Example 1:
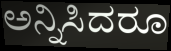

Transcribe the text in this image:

ಅನ್ನಿಸಿದರೂ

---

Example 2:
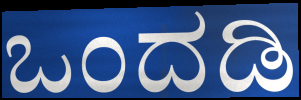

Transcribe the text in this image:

ಒಂದಡಿ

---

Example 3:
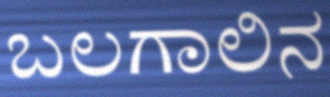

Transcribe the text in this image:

ಬಲಗಾಲಿನ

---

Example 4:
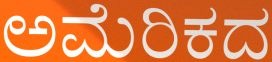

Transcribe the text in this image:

ಅಮೆರಿಕದ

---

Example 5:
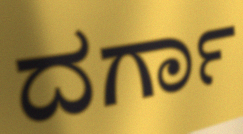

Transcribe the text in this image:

ದರ್ಗಾ